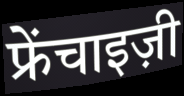
फ्रेंचाइज़ी